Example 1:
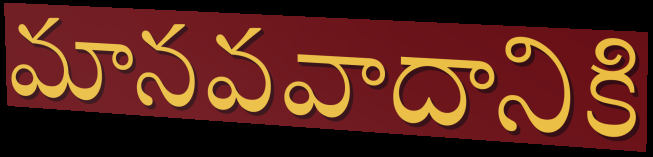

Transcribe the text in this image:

మానవవాదానికి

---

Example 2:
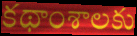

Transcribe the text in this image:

కథాంశాలకు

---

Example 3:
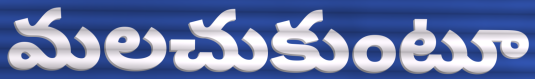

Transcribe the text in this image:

మలచుకుంటూ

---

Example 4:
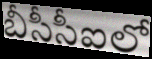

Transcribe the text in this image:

బీసీసీఐలో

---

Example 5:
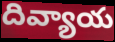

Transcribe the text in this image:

దివ్యాయ